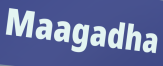
Maagadha